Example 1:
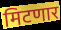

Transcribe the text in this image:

मिटणार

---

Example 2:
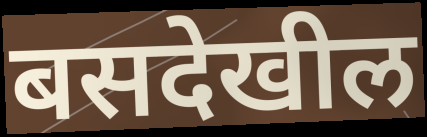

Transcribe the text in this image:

बसदेखील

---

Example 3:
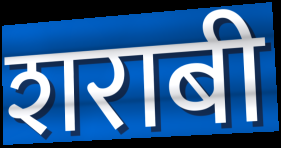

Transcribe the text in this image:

शराबी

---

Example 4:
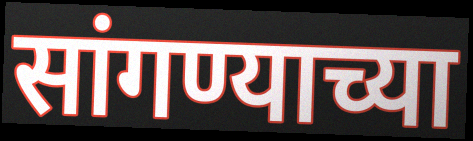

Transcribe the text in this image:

सांगण्याच्या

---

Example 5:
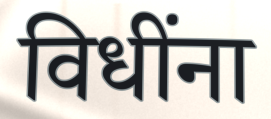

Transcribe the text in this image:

विधींना